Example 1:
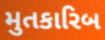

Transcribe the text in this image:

મુતકારિબ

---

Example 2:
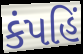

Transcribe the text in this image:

કંપહિં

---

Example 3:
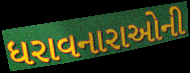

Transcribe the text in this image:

ધરાવનારાઓની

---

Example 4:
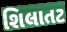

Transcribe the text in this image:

શિલાતટ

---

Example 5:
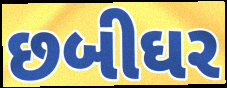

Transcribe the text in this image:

છબીઘર